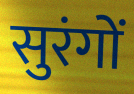
सुरंगों